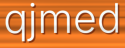
qjmed